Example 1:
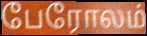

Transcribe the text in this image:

பேரோலம்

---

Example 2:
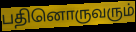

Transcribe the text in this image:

பதினொருவரும்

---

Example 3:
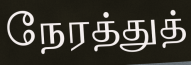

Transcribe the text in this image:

நேரத்துத்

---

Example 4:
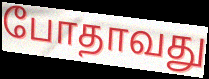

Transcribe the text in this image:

போதாவது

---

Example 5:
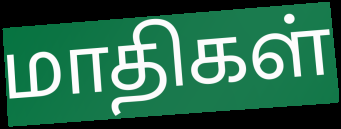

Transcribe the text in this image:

மாதிகள்